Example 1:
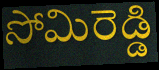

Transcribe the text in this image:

సోమిరెడ్డి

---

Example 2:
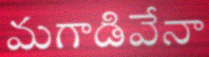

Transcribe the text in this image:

మగాడివేనా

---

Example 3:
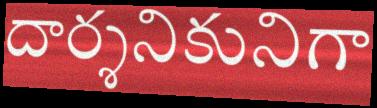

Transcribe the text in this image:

దార్శనికునిగా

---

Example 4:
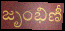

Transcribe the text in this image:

జృంభిణీ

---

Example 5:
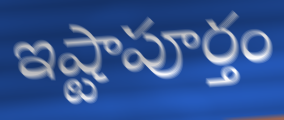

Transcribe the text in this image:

ఇష్టాపూర్తం